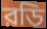
রডি